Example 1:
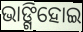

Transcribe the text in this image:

ଭାଙ୍ଗିହୋଇ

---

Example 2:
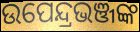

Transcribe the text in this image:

ଉପେନ୍ଦ୍ରଭଞ୍ଜଙ୍କ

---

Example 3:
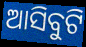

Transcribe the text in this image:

ଆସିବୁଟି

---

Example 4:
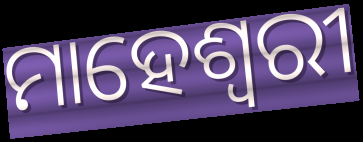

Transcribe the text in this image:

ମାହେଶ୍ଵରୀ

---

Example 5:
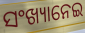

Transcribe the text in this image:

ସଂଖ୍ୟାନେଇ